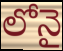
లోనై